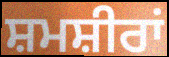
ਸ਼ਮਸ਼ੀਰਾਂ